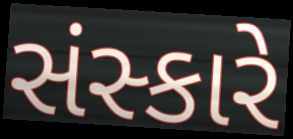
સંસ્કારે